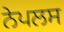
ਨੇਪਲਸ